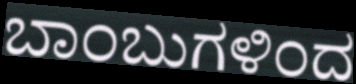
ಬಾಂಬುಗಳಿಂದ